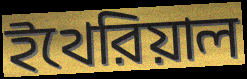
ইথেরিয়াল